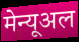
मेन्यूअल